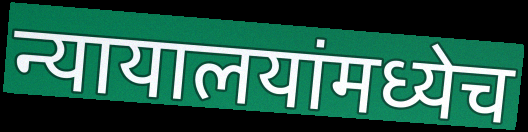
न्यायालयांमध्येच